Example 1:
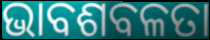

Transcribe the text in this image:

ଭାବଶବଳତା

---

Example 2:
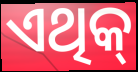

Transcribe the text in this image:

ଏଥିକ୍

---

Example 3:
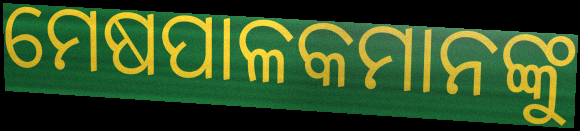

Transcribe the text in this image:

ମେଷପାଳକମାନଙ୍କୁ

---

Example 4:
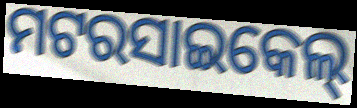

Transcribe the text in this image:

ମଟରସାଇକେଲ୍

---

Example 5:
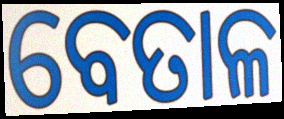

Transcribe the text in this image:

ବେତାଳ